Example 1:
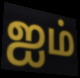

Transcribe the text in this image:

ஐம்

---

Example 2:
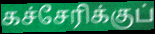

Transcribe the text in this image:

கச்சேரிக்குப்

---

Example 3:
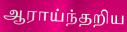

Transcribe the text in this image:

ஆராய்ந்தறிய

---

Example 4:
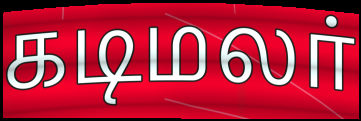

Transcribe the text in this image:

கடிமலர்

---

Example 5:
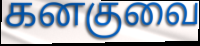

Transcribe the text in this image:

கனகுவை